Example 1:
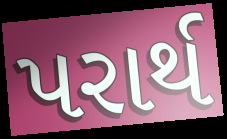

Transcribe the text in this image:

પરાર્થ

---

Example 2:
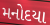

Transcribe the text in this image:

મનોદયા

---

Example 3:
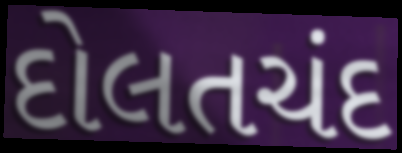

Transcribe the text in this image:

દોલતચંદ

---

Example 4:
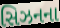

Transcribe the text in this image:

સિઝનના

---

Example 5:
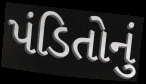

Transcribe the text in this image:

પંડિતોનું